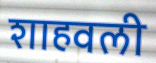
शाहवली